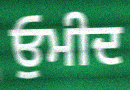
ਓੁਮੀਦ